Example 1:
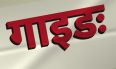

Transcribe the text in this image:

गाइडः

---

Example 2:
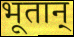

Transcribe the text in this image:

भूतान्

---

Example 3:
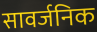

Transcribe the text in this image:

सावर्जनिक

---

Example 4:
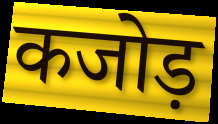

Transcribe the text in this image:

कजोड़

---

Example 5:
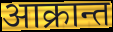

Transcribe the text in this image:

आक्रान्त